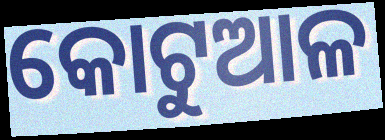
କୋଟୁଆଳ